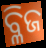
ବ୍ଳିଜ